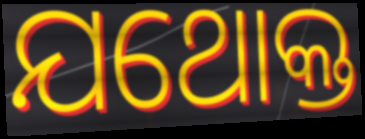
ଯଥୋକ୍ତ